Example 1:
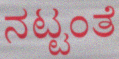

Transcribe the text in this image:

ನಟ್ಟಂತೆ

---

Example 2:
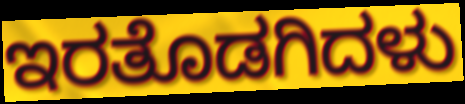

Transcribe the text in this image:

ಇರತೊಡಗಿದಳು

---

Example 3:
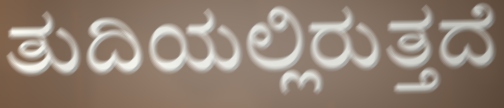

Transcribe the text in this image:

ತುದಿಯಲ್ಲಿರುತ್ತದೆ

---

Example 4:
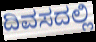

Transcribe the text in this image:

ದಿವಸದಲ್ಲಿ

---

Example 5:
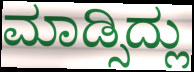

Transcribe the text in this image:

ಮಾಡ್ಸಿದ್ಲು